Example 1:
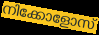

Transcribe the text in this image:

നിക്കോളോസ്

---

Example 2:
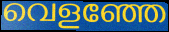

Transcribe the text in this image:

വെളഞ്ഞേ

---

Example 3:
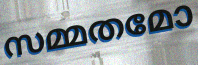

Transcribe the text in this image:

സമ്മതമോ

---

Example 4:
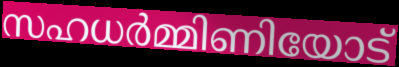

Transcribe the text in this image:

സഹധർമ്മിണിയോട്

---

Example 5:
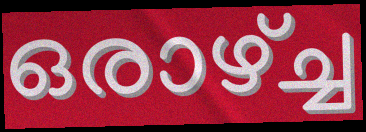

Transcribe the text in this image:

ഒരാഴ്ച്ച